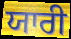
ਯਾਰੀ